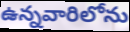
ఉన్నవారిలోను